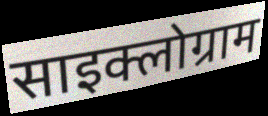
साइक्लोग्राम